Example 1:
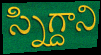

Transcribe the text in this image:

స్నిగ్దాని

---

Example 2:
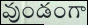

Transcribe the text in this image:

వుండంగా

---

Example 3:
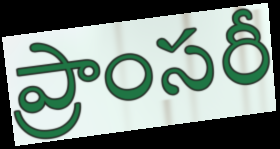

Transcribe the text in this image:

ప్రాంసరీ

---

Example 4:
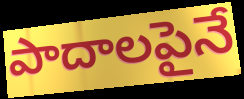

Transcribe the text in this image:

పాదాలపైనే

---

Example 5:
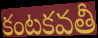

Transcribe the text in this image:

కంటకవతీ